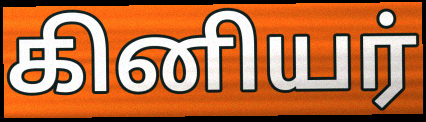
கினியர்